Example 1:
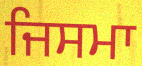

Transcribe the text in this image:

ਜਿਸਮਾ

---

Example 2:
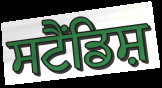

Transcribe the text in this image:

ਸਟੈਂਡਿਸ਼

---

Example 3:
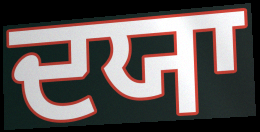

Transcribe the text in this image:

ਦਯਾ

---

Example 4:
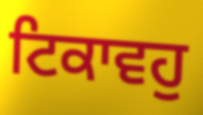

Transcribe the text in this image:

ਟਿਕਾਵਹੁ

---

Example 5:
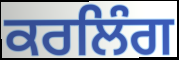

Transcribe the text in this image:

ਕਰਲਿੰਗ